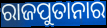
ରାଜପୁତାନାର